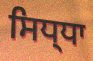
ਸਿਧ੍ਧਾ